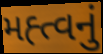
મહ્ત્વનું